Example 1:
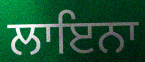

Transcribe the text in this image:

ਲਾਇਨਾ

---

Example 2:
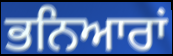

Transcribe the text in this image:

ਭਨਿਆਰਾਂ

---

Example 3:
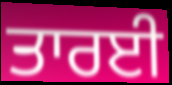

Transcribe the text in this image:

ਤਾਰਈ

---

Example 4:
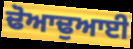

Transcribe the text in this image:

ਢੋਆਢੁਆਈ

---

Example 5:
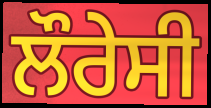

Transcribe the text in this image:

ਲੌਰੇਸੀ